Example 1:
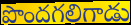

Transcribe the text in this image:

పొందగలిగాడు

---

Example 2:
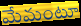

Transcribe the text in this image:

మేమంటూ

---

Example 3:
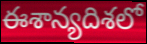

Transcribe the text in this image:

ఈశాన్యదిశలో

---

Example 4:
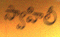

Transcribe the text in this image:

స్వాహిలీ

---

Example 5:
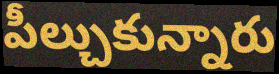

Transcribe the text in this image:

పీల్చుకున్నారు